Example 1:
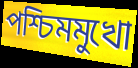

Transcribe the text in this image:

পশ্চিমমুখো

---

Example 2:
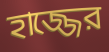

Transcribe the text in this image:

হাজ্জের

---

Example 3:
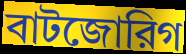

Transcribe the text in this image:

বাটজোরিগ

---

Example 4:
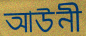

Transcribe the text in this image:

আউনী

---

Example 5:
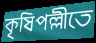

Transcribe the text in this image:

কৃষিপল্লীতে